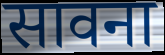
सावना